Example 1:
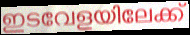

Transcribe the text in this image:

ഇടവേളയിലേക്ക്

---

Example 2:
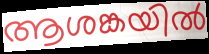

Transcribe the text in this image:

ആശങ്കയിൽ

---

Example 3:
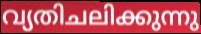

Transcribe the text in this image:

വ്യതിചലിക്കുന്നു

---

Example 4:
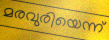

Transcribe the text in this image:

മരവുരിയെന്ന്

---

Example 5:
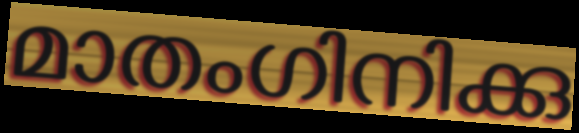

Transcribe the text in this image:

മാതംഗിനിക്കു